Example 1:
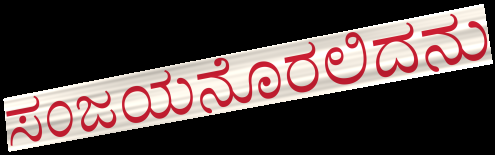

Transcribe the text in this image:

ಸಂಜಯನೊರಲಿದನು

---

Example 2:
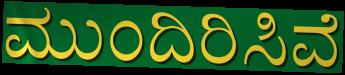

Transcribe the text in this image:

ಮುಂದಿರಿಸಿವೆ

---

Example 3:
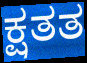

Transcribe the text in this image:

ಕ್ಷತತ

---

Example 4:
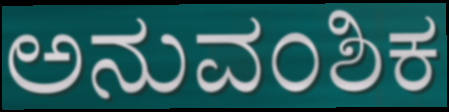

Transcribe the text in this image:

ಅನುವಂಶಿಕ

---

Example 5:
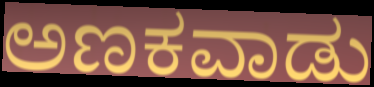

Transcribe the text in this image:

ಅಣಕವಾಡು